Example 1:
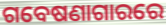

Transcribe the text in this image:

ଗବେଷଣାଗାରରେ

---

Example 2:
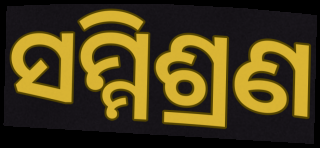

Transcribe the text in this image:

ସମ୍ମିଶ୍ରଣ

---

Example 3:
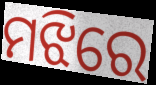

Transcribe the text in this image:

ମଝିରେ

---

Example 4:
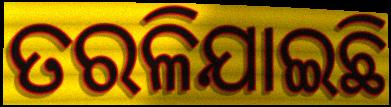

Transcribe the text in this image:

ତରଳିଯାଇଛି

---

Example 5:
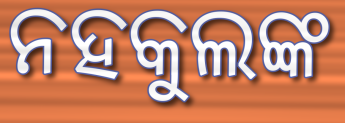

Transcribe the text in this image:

ନହକୁଲଙ୍କ